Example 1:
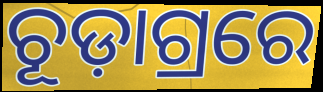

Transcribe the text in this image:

ଚୂଡ଼ାଗ୍ରରେ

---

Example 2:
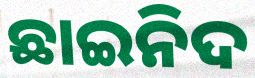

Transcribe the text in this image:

ଛାଇନିଦ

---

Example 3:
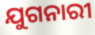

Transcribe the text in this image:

ଯୁଗନାରୀ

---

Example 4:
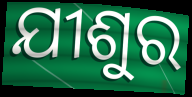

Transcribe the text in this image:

ଯୀଶୁର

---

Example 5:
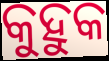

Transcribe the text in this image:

କୁହୁକ